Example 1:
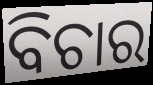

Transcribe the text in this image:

ବିଚାର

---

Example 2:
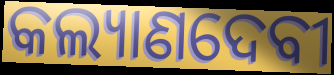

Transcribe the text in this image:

କଲ୍ୟାଣଦେବୀ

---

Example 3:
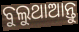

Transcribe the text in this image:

ବୁଲୁଥାଆନ୍ତୁ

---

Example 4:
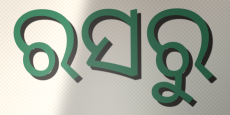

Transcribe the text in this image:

ରସରୁ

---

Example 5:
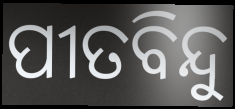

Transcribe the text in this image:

ପୀତବିନ୍ଦୁ